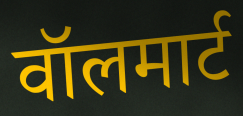
वॉलमार्ट